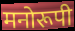
मनोरूपी